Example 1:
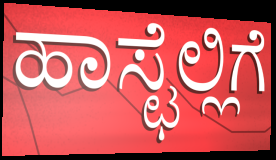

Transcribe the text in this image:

ಹಾಸ್ಟೆಲ್ಲಿಗೆ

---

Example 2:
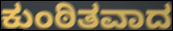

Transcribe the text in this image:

ಕುಂಠಿತವಾದ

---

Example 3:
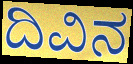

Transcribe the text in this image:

ದಿವಿನ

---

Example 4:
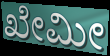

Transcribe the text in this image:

ಖೇಮೀ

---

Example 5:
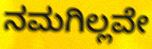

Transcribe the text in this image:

ನಮಗಿಲ್ಲವೇ